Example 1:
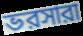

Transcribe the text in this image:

ভরসারা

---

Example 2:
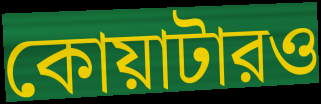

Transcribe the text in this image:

কোয়াটারও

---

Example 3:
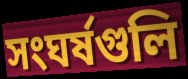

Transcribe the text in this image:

সংঘর্ষগুলি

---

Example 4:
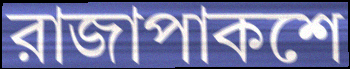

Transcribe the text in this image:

রাজাপাকশে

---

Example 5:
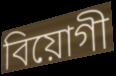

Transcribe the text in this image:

বিয়োগী